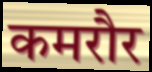
कमरौर